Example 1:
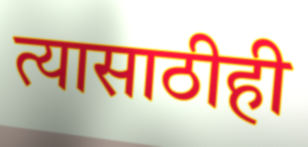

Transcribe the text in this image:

त्यासाठीही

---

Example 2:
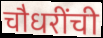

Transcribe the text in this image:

चौधरींची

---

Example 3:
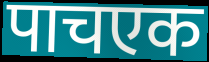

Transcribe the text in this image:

पाचएक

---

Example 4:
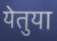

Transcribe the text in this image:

येतुया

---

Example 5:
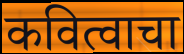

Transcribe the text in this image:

कवित्वाचा